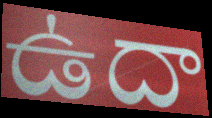
ఉదా